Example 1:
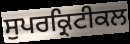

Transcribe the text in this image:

ਸੁਪਰਕ੍ਰਿਟੀਕਲ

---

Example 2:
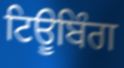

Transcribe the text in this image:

ਟਿਊਬਿੰਗ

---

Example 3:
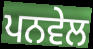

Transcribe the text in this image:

ਪਨਵੇਲ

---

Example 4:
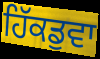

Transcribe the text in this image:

ਹਿੱਕਡੁਵਾ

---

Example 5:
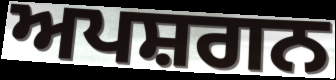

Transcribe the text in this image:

ਅਪਸ਼ਗਨ